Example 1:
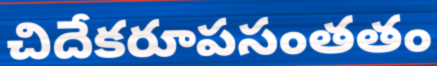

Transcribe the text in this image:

చిదేకరూపసంతతం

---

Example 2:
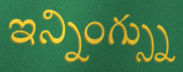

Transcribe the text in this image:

ఇన్నింగ్స్ను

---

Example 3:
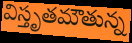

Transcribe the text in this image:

విస్తృతమౌతున్న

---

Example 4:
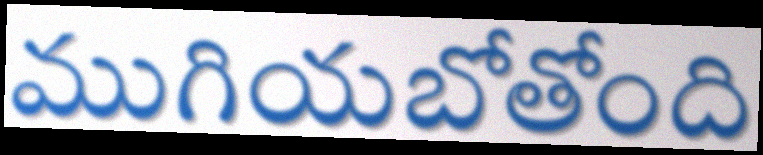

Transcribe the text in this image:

ముగియబోతోంది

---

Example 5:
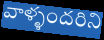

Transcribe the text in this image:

వాళ్ళందరిని